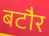
बटौर